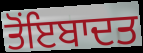
ਤੋਂਇਬਾਦਤ